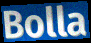
Bolla